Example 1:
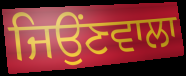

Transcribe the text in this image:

ਜਿਉਂਣਵਾਲਾ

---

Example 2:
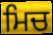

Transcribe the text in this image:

ਮਿਚ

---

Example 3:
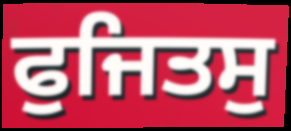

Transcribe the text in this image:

ਫੁਜਿਤਸੁ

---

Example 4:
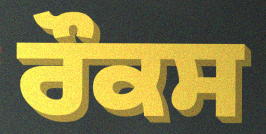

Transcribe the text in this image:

ਰੌਕਸ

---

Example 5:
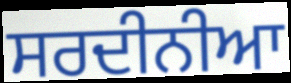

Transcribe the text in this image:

ਸਰਦੀਨੀਆ